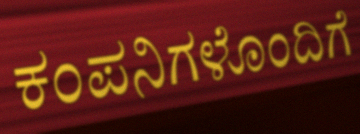
ಕಂಪನಿಗಳೊಂದಿಗೆ